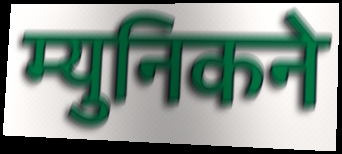
म्युनिकने